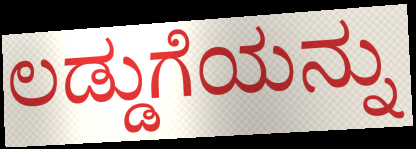
ಲಡ್ಡುಗೆಯನ್ನು